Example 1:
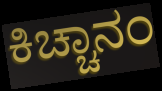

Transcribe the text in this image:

ಕಿಚ್ಚಾನಂ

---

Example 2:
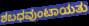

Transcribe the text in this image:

ಶಬಧವುಂಟಾಯತು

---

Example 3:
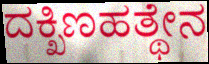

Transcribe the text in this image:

ದಕ್ಖಿಣಹತ್ಥೇನ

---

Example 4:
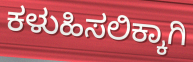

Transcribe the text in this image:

ಕಳುಹಿಸಲಿಕ್ಕಾಗಿ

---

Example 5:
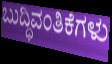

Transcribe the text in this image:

ಬುದ್ಧಿವಂತಿಕೆಗಳು